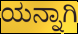
ಯನ್ನಾಗಿ